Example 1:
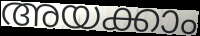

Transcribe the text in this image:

അയക്കാം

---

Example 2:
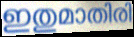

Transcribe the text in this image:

ഇതുമാതിരി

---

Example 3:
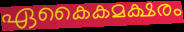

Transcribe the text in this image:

ഏകൈകമക്ഷരം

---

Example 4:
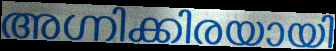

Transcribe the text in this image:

അഗ്നിക്കിരയായി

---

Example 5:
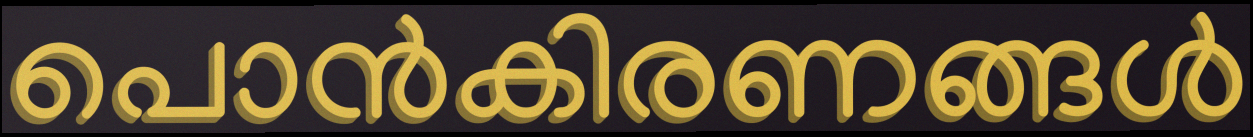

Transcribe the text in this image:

പൊൻകിരണങ്ങൾ